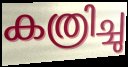
കത്രിച്ചു